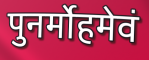
पुनर्मोहमेवं